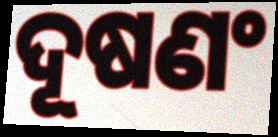
ଦୂଷଣଂ